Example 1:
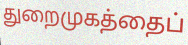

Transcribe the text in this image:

துறைமுகத்தைப்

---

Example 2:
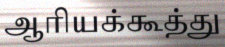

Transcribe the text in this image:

ஆரியக்கூத்து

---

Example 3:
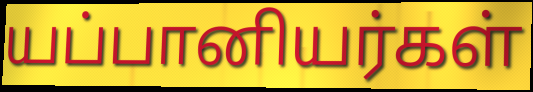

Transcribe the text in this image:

யப்பானியர்கள்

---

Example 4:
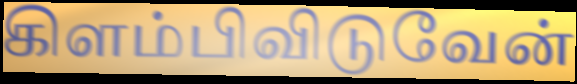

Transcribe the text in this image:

கிளம்பிவிடுவேன்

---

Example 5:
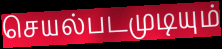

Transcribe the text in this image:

செயல்படமுடியும்